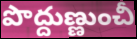
పొద్దుణ్ణుంచీ